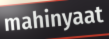
mahinyaat